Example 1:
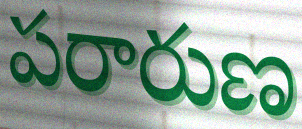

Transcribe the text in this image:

పరారుణ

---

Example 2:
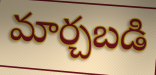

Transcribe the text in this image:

మార్చబడి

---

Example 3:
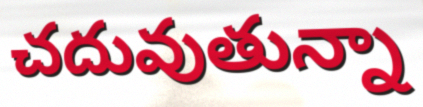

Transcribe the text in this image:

చదువుతున్నా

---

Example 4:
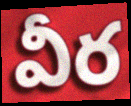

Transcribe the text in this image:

వీర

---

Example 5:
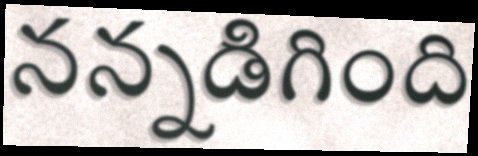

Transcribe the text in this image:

నన్నడిగింది